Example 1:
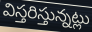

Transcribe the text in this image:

విస్తరిస్తున్నట్లు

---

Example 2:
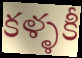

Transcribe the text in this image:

కళ్ళకీ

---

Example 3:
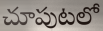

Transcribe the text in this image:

చూపుటలో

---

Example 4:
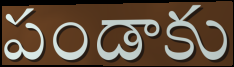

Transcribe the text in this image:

పండాకు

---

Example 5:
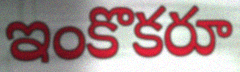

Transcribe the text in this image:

ఇంకొకరూ